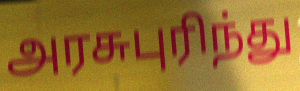
அரசுபுரிந்து